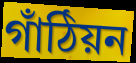
গাঁঠিয়ন